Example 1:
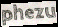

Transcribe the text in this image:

phezu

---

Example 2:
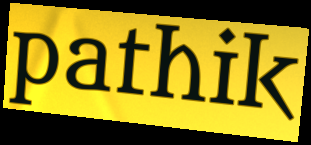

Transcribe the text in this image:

pathik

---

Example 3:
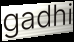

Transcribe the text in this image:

gadhi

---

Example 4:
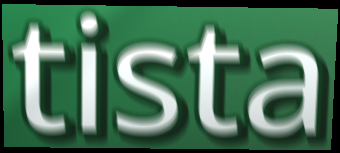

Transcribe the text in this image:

tista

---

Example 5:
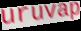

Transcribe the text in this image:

uruvap